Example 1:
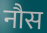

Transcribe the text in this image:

नौस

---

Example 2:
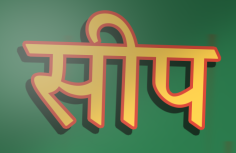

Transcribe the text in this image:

सीप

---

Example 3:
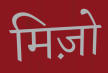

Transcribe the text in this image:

मिज़ो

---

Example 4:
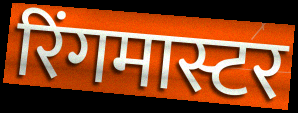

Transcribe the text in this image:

रिंगमास्टर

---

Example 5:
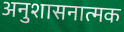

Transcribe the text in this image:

अनुशासनात्मक